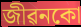
জীৱনকো